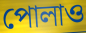
পোলাও